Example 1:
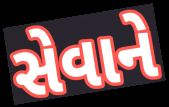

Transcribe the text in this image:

સેવાને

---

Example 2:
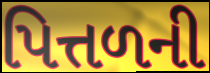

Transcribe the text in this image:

પિત્તળની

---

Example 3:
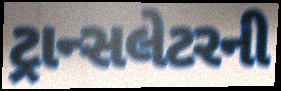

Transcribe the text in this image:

ટ્રાન્સલેટરની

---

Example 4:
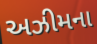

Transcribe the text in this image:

અઝીમના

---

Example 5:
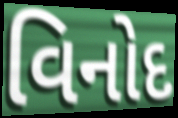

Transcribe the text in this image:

વિનોદ